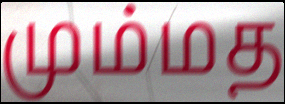
மும்மத